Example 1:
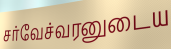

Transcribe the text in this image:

சர்வேச்வரனுடைய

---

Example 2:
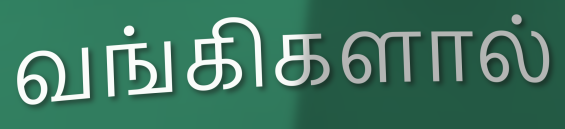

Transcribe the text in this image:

வங்கிகளால்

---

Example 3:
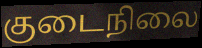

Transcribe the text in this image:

குடைநிலை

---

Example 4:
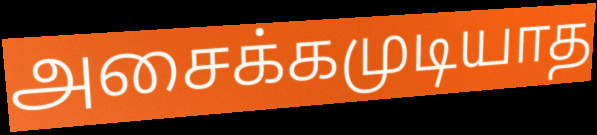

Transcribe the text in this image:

அசைக்கமுடியாத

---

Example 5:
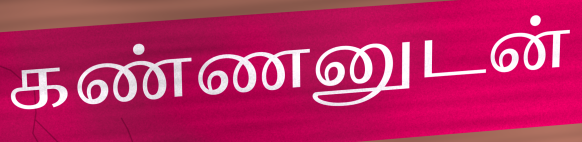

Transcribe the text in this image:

கண்ணனுடன்